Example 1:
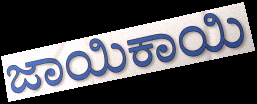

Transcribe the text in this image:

ಜಾಯಿಕಾಯಿ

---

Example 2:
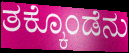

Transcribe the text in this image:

ತಕ್ಕೊಂಡೆನು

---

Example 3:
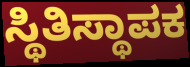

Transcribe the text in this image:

ಸ್ಥಿತಿಸ್ಥಾಪಕ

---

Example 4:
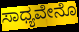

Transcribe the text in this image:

ಸಾಧ್ಯವೇನೊ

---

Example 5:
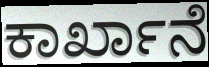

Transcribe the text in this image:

ಕಾರ್ಖಾನೆ